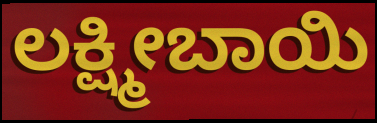
ಲಕ್ಷ್ಮೀಬಾಯಿ